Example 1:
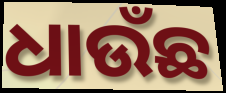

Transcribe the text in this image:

ଧାଉଁଛ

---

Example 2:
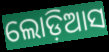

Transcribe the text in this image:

ଲୋଡ଼ିଆସ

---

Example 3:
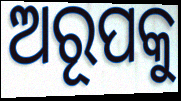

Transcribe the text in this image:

ଅରୂପକୁ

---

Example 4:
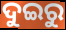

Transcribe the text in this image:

ଦୁଇରୁ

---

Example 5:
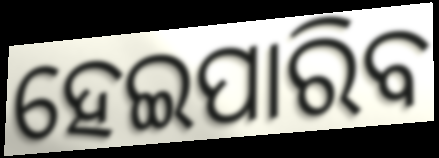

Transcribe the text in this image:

ହେଇପାରିବ